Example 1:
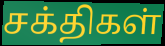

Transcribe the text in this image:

சக்திகள்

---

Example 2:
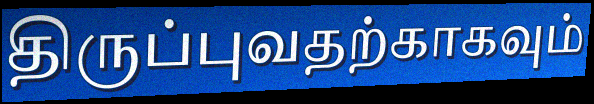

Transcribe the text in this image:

திருப்புவதற்காகவும்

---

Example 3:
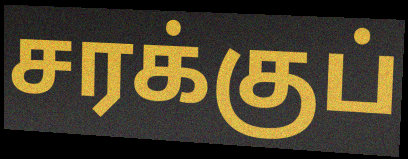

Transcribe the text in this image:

சரக்குப்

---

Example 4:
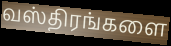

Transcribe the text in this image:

வஸ்திரங்களை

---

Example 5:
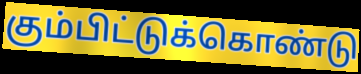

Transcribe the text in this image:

கும்பிட்டுக்கொண்டு